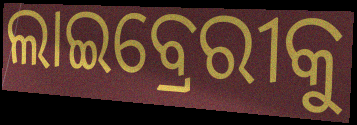
ଲାଇବ୍ରେରୀକୁ